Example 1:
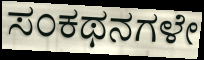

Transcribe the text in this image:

ಸಂಕಥನಗಳೇ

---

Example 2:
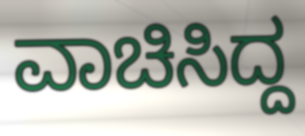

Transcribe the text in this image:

ವಾಚಿಸಿದ್ದ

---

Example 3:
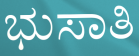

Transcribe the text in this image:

ಭುಸಾತಿ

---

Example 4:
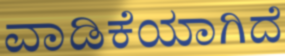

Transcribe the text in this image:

ವಾಡಿಕೆಯಾಗಿದೆ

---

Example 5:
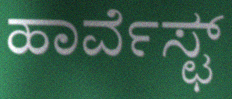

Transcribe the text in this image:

ಹಾರ್ವೆಸ್ಟ್